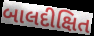
બાલદીક્ષિત